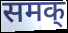
समक्